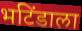
भटिंडाला